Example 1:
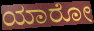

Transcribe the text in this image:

ಯಾರೋ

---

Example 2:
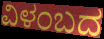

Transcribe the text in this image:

ವಿಳಂಬದ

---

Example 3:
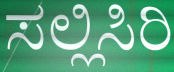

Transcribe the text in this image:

ಸಲ್ಲಿಸಿರಿ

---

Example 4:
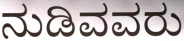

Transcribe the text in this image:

ನುಡಿವವರು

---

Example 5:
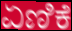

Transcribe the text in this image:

ಏಣಿಕೆ